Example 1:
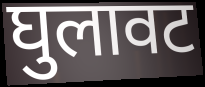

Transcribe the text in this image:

घुलावट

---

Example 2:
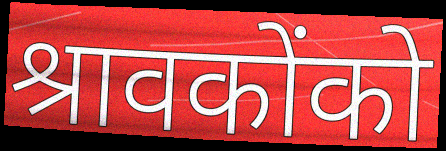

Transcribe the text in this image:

श्रावकोंको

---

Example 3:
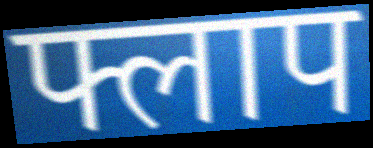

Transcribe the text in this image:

फ्लाप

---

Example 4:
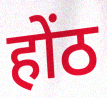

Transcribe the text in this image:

होंठ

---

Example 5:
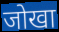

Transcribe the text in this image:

जोखा